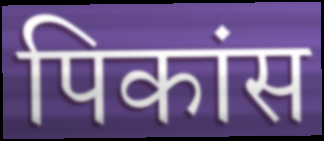
पिकांस